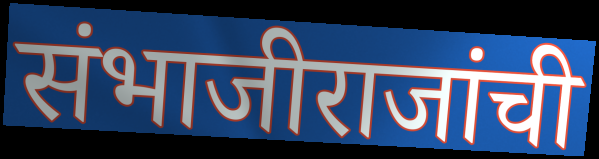
संभाजीराजांची